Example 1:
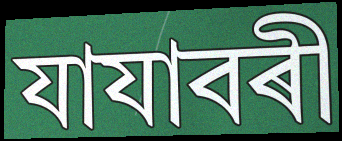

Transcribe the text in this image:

যাযাবৰী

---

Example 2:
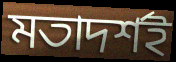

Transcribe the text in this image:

মতাদৰ্শই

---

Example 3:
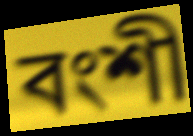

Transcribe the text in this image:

বংশী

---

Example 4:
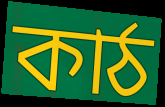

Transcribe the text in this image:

কাঠ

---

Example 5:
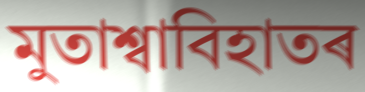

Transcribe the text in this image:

মুতাশ্বাবিহাতৰ